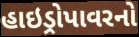
હાઇડ્રોપાવરનો